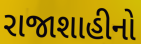
રાજાશાહીનો